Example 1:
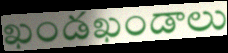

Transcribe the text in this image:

ఖండఖండాలు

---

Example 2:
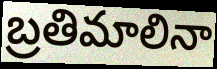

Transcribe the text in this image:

బ్రతిమాలినా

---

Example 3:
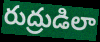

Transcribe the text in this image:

రుద్రుడిలా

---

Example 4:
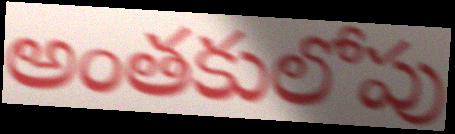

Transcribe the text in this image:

అంతకులోపు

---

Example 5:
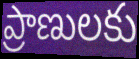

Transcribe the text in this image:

ప్రాణులకు